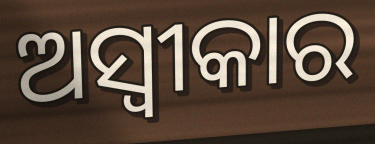
ଅସ୍ୱୀକାର